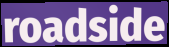
roadside